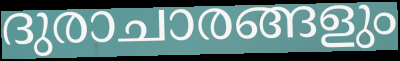
ദുരാചാരങ്ങളും